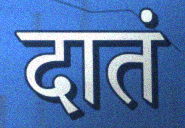
दातं